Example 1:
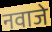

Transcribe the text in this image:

नवाजे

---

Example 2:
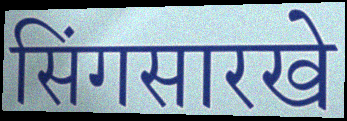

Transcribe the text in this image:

सिंगसारखे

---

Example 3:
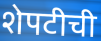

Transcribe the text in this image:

शेपटीची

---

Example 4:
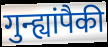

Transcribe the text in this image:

गुन्ह्यांपैकी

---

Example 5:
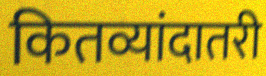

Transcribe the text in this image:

कितव्यांदातरी